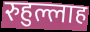
रुहुल्लाह